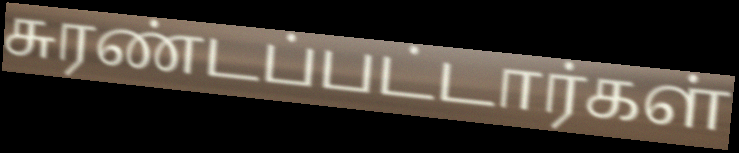
சுரண்டப்பட்டார்கள்